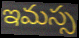
ఇమస్స